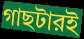
গাছটারই